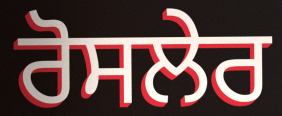
ਰੋਸਲੇਰ